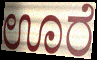
ಊರೆ